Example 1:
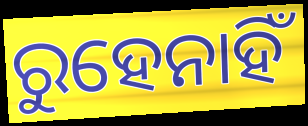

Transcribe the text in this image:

ରୁହେନାହିଁ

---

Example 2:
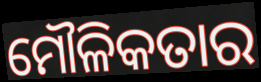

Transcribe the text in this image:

ମୌଳିକତାର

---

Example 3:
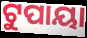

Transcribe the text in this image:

ଟୁପାୟା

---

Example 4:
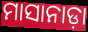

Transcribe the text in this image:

ମାସାନାଡ଼ା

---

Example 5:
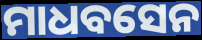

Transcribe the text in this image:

ମାଧବସେନ